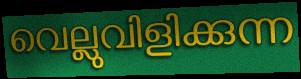
വെല്ലുവിളിക്കുന്ന